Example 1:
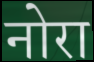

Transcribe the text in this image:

नोरा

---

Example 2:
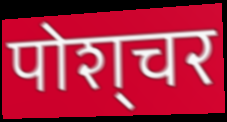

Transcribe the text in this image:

पोश्चर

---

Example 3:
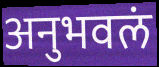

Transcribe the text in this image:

अनुभवलं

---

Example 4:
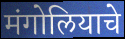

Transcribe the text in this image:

मंगोलियाचे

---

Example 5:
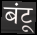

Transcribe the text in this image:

बंटू